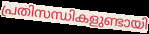
പ്രതിസന്ധികളുണ്ടായി